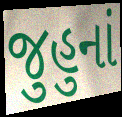
જુહુનાં